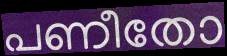
പണീതോ